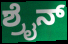
ಶ್ರೈನ್